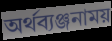
অর্থব্যঞ্জনাময়